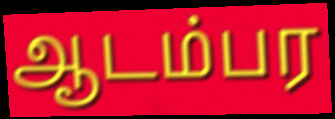
ஆடம்பர